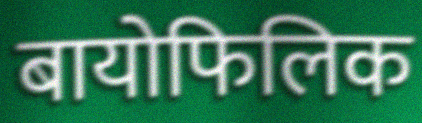
बायोफिलिक